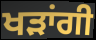
ਖੜਾਂਗੀ